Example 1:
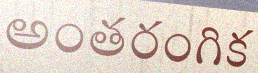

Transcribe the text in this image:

అంతరంగిక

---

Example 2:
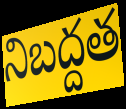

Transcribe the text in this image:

నిబద్దత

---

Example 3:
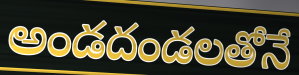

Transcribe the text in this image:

అండదండలతోనే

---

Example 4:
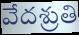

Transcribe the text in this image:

వేదశ్రుతి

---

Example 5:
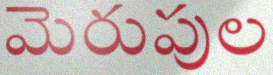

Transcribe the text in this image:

మెరుపుల